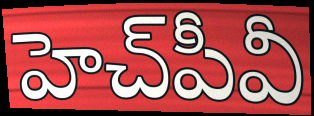
హెచ్‌పీవీ